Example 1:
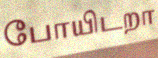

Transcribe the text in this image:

போயிடறா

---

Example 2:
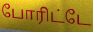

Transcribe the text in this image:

போரிட்டே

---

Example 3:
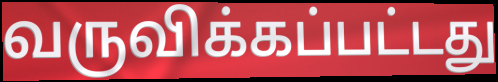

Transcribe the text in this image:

வருவிக்கப்பட்டது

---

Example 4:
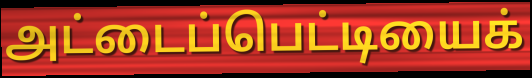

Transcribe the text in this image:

அட்டைப்பெட்டியைக்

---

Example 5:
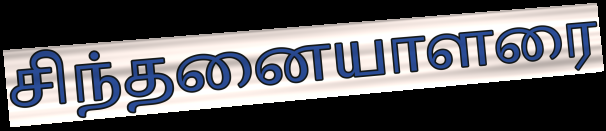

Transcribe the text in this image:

சிந்தனையாளரை